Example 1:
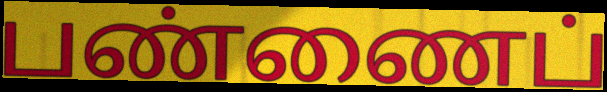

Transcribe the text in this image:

பண்ணைப்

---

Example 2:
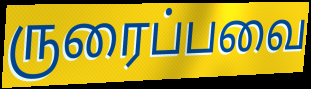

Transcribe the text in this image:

ருரைப்பவை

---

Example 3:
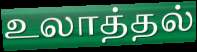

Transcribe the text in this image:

உலாத்தல்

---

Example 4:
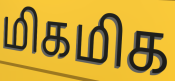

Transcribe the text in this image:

மிகமிக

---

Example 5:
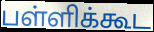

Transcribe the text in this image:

பள்ளிக்கூட